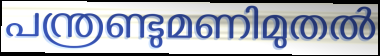
പന്ത്രണ്ടുമണിമുതൽ